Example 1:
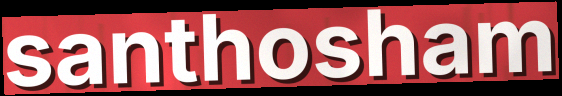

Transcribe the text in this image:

santhosham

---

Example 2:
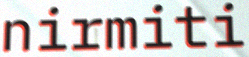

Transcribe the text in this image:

nirmiti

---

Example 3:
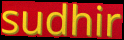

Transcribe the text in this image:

sudhir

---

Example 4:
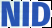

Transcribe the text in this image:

NID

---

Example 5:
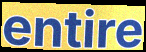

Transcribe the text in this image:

entire